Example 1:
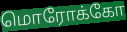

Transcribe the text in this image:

மொரோக்கோ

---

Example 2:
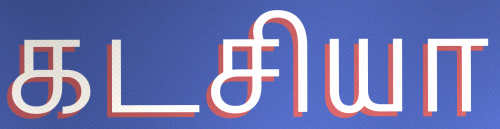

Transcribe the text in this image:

கடசியா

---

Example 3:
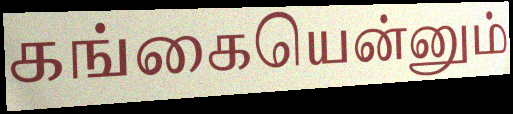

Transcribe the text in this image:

கங்கையென்னும்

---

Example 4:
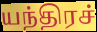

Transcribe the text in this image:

யந்திரச்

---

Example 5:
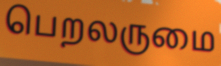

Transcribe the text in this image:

பெறலருமை